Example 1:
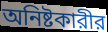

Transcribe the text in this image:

অনিষ্টকারীর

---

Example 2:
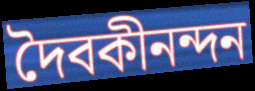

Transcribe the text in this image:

দৈবকীনন্দন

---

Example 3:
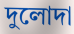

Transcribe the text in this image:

দুলোদা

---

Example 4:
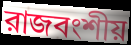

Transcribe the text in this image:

রাজবংশীয়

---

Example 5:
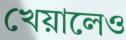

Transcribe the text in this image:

খেয়ালেও